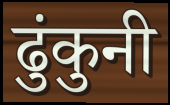
ढुंकुनी